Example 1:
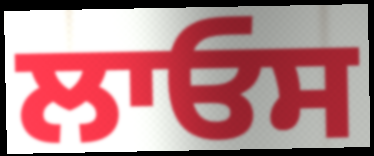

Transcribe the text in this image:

ਲਾਓਸ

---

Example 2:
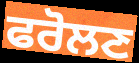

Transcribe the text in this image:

ਫਰੋਲਣ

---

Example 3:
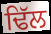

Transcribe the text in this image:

ਢਿੱਲ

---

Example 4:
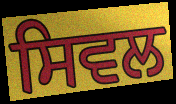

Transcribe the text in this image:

ਸਿਵਲ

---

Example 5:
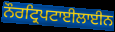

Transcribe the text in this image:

ਨੌਰਟ੍ਰਿਪਟਾਈਲਾਈਨ